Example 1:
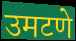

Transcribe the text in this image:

उमटणे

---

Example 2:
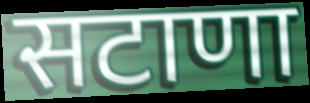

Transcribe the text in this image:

सटाणा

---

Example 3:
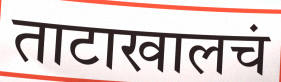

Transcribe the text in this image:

ताटाखालचं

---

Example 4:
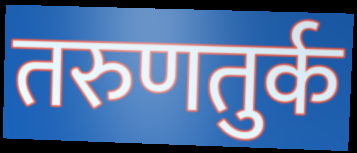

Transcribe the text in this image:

तरुणतुर्क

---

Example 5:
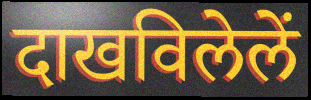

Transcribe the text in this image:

दाखविलेलें